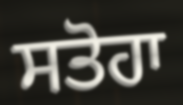
ਸਤੋਹਾ